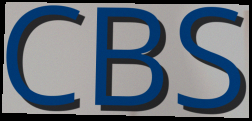
CBS